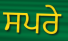
ਸਪਰੇ